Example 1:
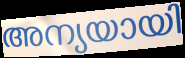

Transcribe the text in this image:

അന്യയായി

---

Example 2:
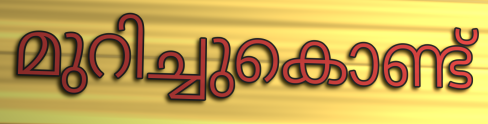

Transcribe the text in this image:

മുറിച്ചുകൊണ്ട്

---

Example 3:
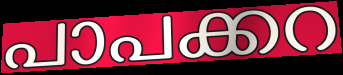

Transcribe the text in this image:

പാപക്കറ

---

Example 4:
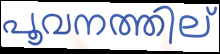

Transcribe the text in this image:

പൂവനത്തില്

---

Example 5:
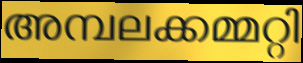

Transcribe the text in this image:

അമ്പലക്കമ്മറ്റി